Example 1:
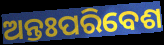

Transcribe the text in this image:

ଅନ୍ତଃପରିବେଶ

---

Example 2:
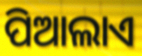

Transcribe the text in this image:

ପିଆଲାଏ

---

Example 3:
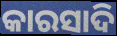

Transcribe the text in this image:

କାରସାଦି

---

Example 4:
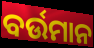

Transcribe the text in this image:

ବର୍ଉମାନ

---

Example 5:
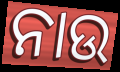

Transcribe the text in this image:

ନାଉ